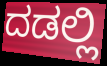
ದಡಲ್ಲಿ